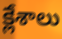
క్లేశాలు